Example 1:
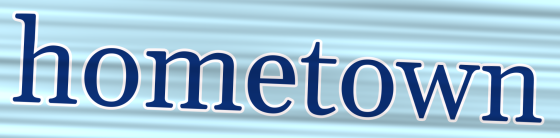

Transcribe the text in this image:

hometown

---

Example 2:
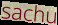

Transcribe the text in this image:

sachu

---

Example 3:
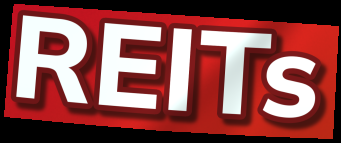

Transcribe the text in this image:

REITs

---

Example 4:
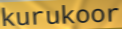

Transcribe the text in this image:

kurukoor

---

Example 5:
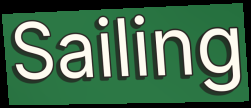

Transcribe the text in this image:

Sailing